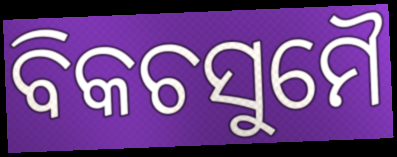
ବିକଚସୁମୈ